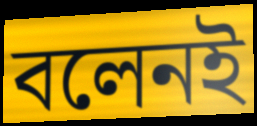
বলেনই